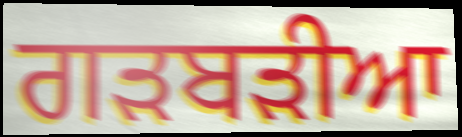
ਗੜਬੜੀਆ